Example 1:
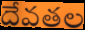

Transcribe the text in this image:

దేవతల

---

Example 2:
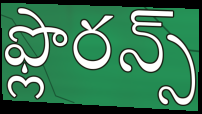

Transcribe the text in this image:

ఫ్లొరన్స్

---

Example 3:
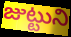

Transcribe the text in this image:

జుట్టుని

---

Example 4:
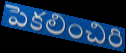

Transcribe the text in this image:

పెకలించిరి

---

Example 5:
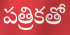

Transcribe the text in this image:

పత్రికతో